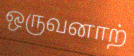
ஒருவனாற்